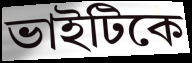
ভাইটিকে